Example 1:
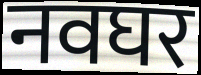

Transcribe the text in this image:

नवघर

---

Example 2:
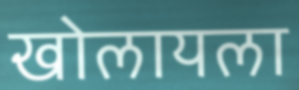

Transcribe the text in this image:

खोलायला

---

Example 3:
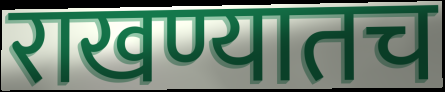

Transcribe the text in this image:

राखण्यातच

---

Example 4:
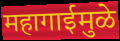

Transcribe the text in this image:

महागाईमुळे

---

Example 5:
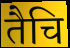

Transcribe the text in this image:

तैचि